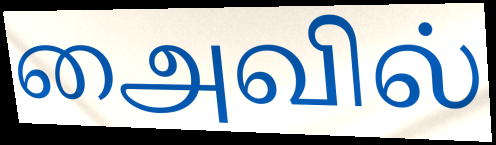
அைவில்